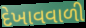
દેખાવવાળી